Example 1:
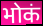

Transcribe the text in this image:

भोकं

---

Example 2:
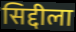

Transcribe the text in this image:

सिद्दीला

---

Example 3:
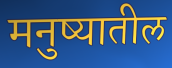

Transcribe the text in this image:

मनुष्यातील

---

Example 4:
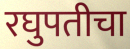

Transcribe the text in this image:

रघुपतीचा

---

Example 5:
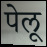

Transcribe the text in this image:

पेलू